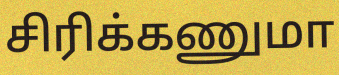
சிரிக்கணுமா